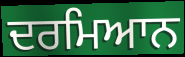
ਦਰਮਿਆਨ